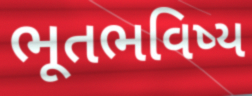
ભૂતભવિષ્ય